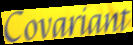
Covariant